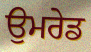
ਉਮਰੇਡ